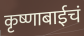
कृष्णाबाईचं